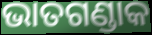
ଭାତଗଣ୍ଡାକ